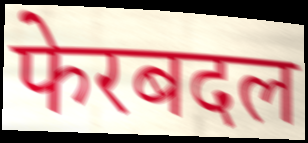
फेरबदल